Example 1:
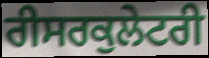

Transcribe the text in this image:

ਰੀਸਰਕੁਲੇਟਰੀ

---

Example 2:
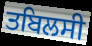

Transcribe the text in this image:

ਤਬਿਲਸੀ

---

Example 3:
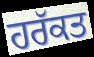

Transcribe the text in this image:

ਹਰੱਕਤ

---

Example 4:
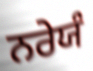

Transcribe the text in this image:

ਨਰੇਯੰ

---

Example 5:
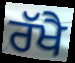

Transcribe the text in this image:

ਰੱਖੈ